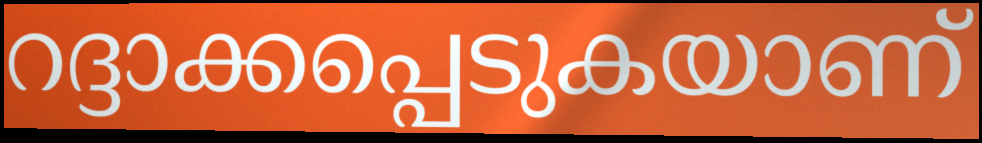
റദ്ദാക്കപ്പെടുകയാണ്